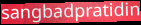
sangbadpratidin